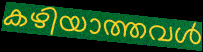
കഴിയാത്തവൾ